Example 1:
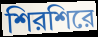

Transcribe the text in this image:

শিরশিরে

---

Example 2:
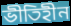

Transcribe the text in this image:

ভীতিহীন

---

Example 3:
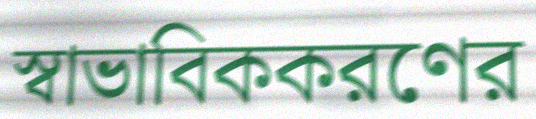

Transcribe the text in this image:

স্বাভাবিককরণের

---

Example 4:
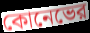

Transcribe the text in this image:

কোনেভের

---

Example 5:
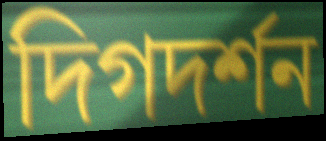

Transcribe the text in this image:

দিগদর্শন